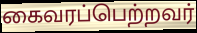
கைவரப்பெற்றவர்